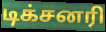
டிக்சனரி